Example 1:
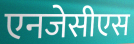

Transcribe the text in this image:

एनजेसीएस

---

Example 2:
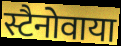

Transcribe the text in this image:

स्टैनोवाया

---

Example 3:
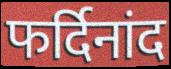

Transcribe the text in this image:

फर्दिनांद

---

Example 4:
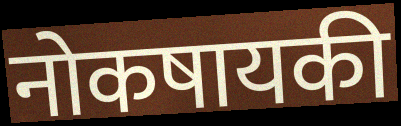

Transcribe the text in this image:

नोकषायकी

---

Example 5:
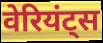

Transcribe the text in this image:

वेरियंट्स